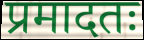
प्रमादतः